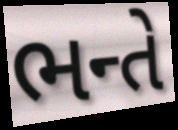
ભન્તે